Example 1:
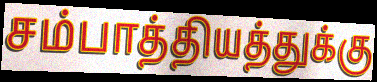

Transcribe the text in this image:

சம்பாத்தியத்துக்கு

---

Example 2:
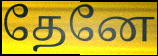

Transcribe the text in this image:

தேனே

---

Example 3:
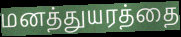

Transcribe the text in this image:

மனத்துயரத்தை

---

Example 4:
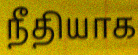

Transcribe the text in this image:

நீதியாக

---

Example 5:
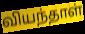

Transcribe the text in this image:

வியந்தாள்